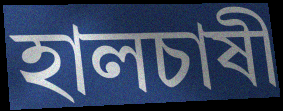
হালচাষী